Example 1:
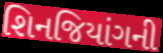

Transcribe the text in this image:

શિનજિયાંગની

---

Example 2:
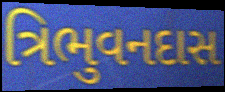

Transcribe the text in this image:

ત્રિભુવનદાસ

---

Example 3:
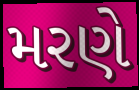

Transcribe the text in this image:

મરણે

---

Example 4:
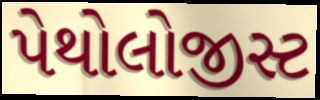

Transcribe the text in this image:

પેથોલોજીસ્ટ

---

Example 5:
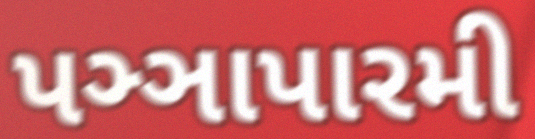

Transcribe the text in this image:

પઞ્ઞાપારમી